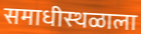
समाधीस्थळाला